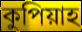
কুপিয়াহ